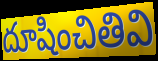
దూషించితివి